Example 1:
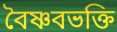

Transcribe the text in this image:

বৈষ্ণবভক্তি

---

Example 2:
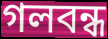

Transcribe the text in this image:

গলবন্ধ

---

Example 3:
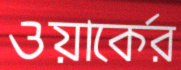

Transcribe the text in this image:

ওয়ার্কের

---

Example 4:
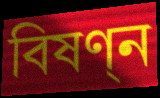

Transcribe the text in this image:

বিষণ্ন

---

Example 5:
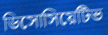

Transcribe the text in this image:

ডিসোসিয়েটিভ